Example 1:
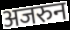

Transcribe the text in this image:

अजरुन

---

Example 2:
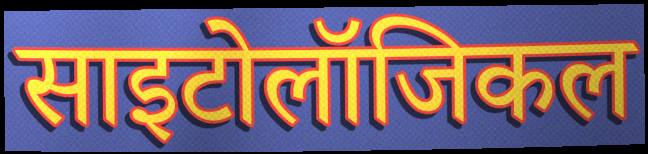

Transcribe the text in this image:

साइटोलॉजिकल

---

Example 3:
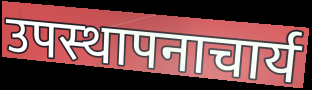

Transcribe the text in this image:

उपस्थापनाचार्य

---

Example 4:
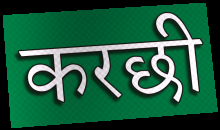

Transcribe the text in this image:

करछी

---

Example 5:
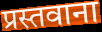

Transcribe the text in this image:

प्रस्तवाना